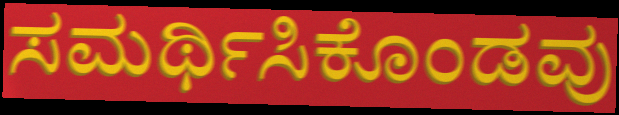
ಸಮರ್ಥಿಸಿಕೊಂಡವು